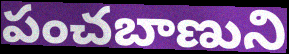
పంచబాణుని